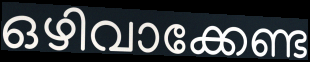
ഒഴിവാക്കേണ്ട